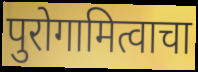
पुरोगामित्वाचा